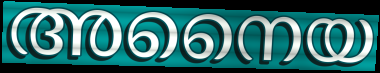
അനൈയ